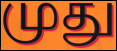
முது